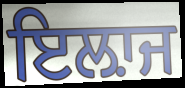
ਇਲ਼ਾਜ